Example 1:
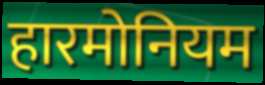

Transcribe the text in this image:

हारमोनियम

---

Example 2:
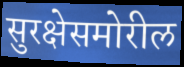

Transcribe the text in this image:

सुरक्षेसमोरील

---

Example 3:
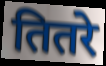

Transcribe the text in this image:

तितरे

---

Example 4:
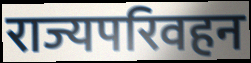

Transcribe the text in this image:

राज्यपरिवहन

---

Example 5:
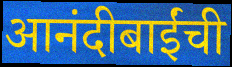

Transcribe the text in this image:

आनंदीबाईंची